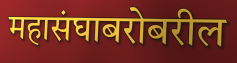
महासंघाबरोबरील